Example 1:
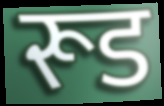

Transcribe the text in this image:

रूड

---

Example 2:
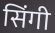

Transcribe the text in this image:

सिंगी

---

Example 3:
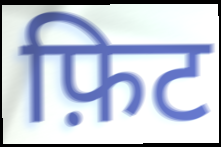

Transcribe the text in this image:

फ़िट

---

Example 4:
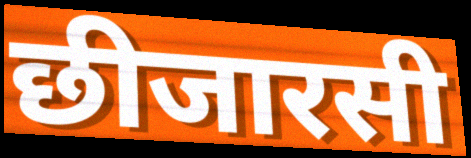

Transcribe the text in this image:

छीजारसी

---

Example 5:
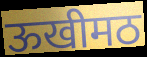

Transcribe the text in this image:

ऊखीमठ